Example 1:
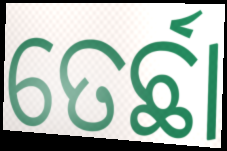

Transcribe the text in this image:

ତେର୍ଛା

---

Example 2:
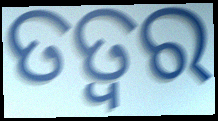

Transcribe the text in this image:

ତତ୍ଵର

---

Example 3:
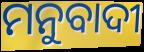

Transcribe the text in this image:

ମନୁବାଦୀ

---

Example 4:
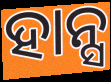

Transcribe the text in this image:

ହାନ୍ସ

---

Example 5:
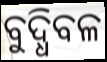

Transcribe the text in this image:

ବୁଦ୍ଧିବଳ